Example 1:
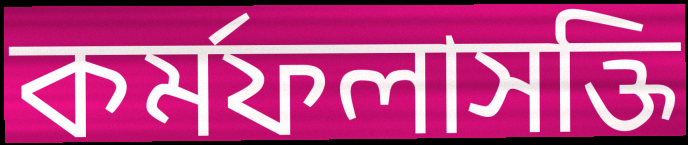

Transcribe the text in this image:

কর্মফলাসক্তি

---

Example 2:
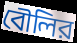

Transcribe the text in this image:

বৌলির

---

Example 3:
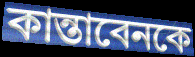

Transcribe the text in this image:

কান্তাবেনকে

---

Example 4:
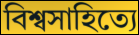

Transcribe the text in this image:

বিশ্বসাহিত্যে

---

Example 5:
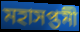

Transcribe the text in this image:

মহাসপ্তমী